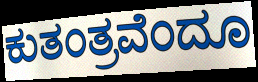
ಕುತಂತ್ರವೆಂದೂ